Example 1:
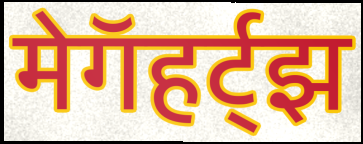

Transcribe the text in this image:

मेगॅहर्ट्‌झ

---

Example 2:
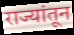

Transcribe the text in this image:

राज्यांतून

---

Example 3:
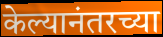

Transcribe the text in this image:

केल्यानंतरच्या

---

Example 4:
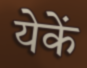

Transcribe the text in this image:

येकें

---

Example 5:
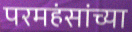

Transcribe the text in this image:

परमहंसांच्या